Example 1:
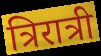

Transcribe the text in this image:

त्रिरात्री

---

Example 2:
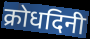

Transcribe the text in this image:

क्रोधदिनी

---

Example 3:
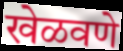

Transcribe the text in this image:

खेळवणे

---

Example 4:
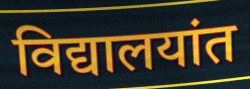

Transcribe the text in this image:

विद्यालयांत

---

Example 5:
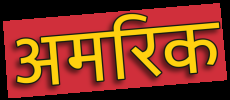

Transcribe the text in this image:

अमरिक